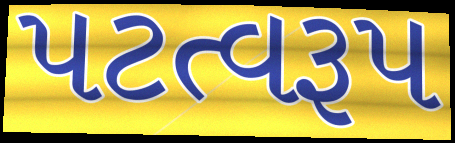
પટત્વરૂપ